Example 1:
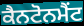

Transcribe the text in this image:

ਕੈਨਟੋਨਮੈਂਟ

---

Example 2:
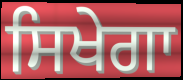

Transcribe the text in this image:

ਸਿਖੇਗਾ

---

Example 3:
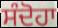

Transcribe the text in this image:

ਸੰਦੋਹਾ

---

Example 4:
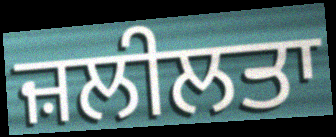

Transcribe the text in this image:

ਜ਼ਲੀਲਤਾ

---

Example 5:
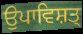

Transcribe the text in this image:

ਉਪਾਵਿਸ਼ਤ੍